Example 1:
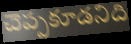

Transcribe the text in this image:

చెప్పకూడనిది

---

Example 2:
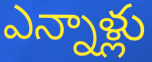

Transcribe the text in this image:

ఎన్నాళ్లు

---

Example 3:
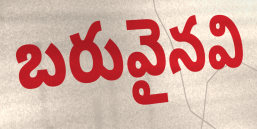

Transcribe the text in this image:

బరువైనవి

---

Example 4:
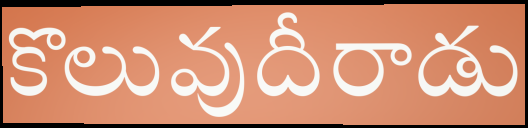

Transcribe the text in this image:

కొలువుదీరాడు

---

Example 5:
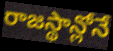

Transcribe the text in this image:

రాజస్థాన్లోనే